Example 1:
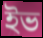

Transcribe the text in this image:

ইভ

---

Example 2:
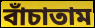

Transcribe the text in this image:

বাঁচাতাম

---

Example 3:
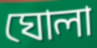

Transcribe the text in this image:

ঘোলা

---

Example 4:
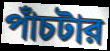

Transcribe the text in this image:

পাঁচটার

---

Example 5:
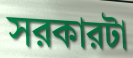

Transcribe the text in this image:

সরকারটা